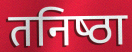
तनिष्‍ठा